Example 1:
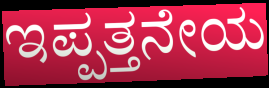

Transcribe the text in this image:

ಇಪ್ಪತ್ತನೇಯ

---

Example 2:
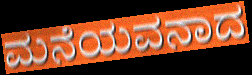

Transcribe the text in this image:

ಮನೆಯವನಾದ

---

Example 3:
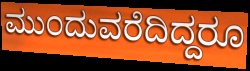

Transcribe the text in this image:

ಮುಂದುವರೆದಿದ್ದರೂ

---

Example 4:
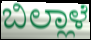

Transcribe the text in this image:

ಬಿಲ್ಲಾಳೆ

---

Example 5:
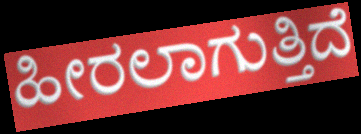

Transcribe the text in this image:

ಹೀರಲಾಗುತ್ತಿದೆ